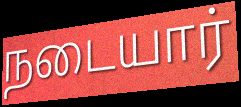
நடையார்